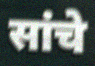
सांचे